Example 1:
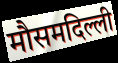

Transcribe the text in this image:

मौसमदिल्ली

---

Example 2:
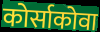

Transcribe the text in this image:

कोर्साकोवा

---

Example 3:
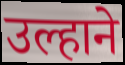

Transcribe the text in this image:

उल्हाने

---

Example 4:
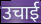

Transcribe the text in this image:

उचाई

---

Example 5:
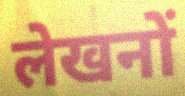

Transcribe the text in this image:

लेखनों